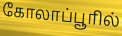
கோலாப்பூரில்